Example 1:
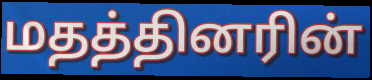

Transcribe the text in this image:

மதத்தினரின்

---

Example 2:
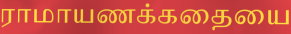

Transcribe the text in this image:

ராமாயணக்கதையை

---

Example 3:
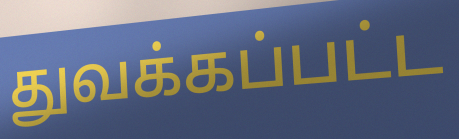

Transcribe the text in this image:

துவக்கப்பட்ட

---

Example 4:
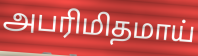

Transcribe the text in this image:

அபரிமிதமாய்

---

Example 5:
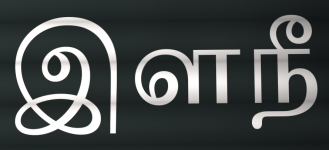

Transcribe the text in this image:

இளநீ